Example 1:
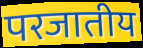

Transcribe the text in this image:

परजातीय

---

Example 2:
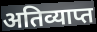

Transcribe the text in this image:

अतिव्याप्त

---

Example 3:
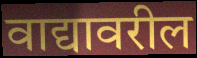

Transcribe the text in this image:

वाद्यावरील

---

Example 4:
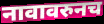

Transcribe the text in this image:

नावावरुनच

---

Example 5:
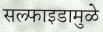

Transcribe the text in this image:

सल्फाइडामुळे